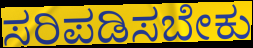
ಸರಿಪಡಿಸಬೇಕು